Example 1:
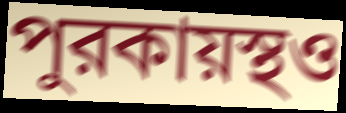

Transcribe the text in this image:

পুরকায়স্থও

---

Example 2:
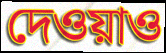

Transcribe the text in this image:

দেওয়াও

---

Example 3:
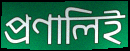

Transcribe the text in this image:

প্রণালিই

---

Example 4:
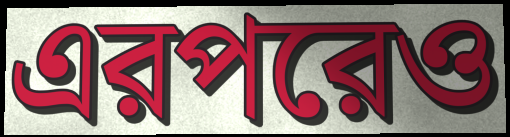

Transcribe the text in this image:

এরপরেও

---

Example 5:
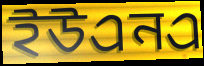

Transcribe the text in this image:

ইউএনএ